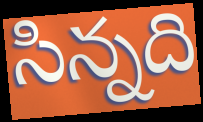
సిన్నది